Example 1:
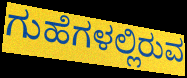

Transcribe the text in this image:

ಗುಹೆಗಳಲ್ಲಿರುವ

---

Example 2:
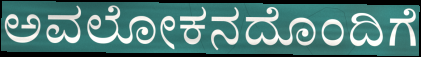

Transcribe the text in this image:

ಅವಲೋಕನದೊಂದಿಗೆ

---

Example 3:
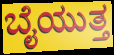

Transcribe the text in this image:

ಬೈಯುತ್ತ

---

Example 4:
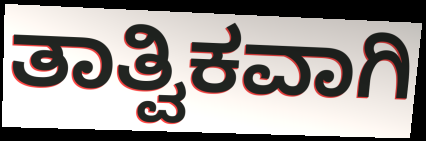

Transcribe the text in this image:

ತಾತ್ವಿಕವಾಗಿ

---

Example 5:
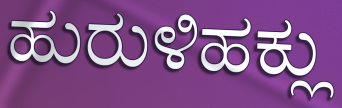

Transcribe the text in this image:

ಹುರುಳಿಹಕ್ಲು